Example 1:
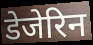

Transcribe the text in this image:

डेजेरिन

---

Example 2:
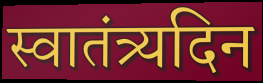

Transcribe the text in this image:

स्वातंत्र्यदिन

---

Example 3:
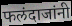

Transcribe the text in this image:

फलंदाजांनी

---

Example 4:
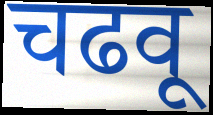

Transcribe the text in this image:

चढवू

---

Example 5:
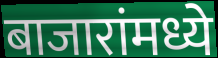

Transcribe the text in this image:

बाजारांमध्ये